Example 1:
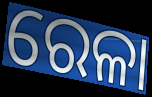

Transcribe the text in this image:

ରେଳା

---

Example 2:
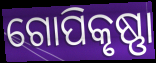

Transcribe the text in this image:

ଗୋପିକୃଷ୍ଣା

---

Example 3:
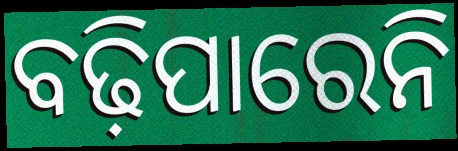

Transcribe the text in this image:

ବଢ଼ିପାରେନି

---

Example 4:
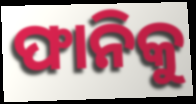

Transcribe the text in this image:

ଫାନିକୁ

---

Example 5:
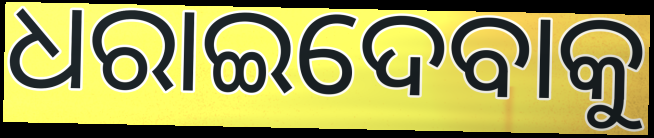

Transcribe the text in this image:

ଧରାଇଦେବାକୁ